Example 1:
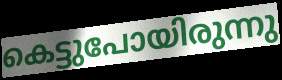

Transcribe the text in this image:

കെട്ടുപോയിരുന്നു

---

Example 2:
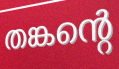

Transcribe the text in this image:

തങ്കന്റെ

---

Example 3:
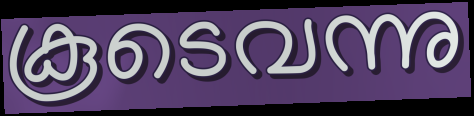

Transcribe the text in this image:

കൂടെവന്നു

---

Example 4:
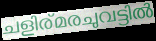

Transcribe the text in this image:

ചളിര്മരചുവട്ടിൽ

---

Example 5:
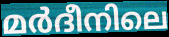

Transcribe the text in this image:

മർദീനിലെ